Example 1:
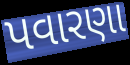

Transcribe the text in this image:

પવારણા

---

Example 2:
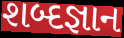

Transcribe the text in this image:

શબ્દજ્ઞાન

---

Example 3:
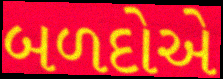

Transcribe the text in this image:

બળદોએ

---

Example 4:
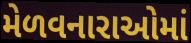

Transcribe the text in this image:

મેળવનારાઓમાં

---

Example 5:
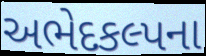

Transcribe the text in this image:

અભેદકલ્પના